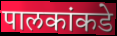
पालकांकडे